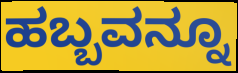
ಹಬ್ಬವನ್ನೂ